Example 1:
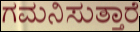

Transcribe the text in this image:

ಗಮನಿಸುತ್ತಾರೆ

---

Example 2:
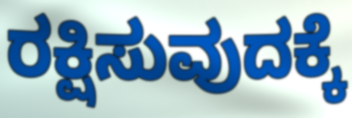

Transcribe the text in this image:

ರಕ್ಷಿಸುವುದಕ್ಕೆ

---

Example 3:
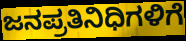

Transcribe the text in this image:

ಜನಪ್ರತಿನಿಧಿಗಳಿಗೆ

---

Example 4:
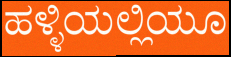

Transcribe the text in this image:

ಹಳ್ಳಿಯಲ್ಲಿಯೂ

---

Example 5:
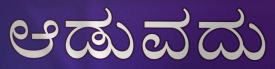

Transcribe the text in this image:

ಆಡುವದು